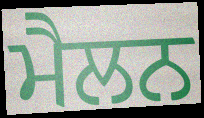
ਮੈਲਨ